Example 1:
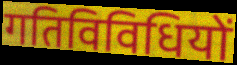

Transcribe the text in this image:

गतिविविधियों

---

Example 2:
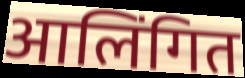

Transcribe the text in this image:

आलिंगित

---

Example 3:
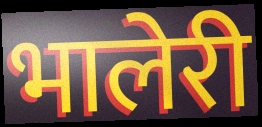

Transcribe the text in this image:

भालेरी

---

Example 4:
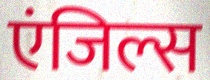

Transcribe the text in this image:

एंजिल्‍स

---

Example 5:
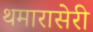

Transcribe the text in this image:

थमारासेरी